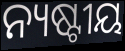
ନ୍ୟଷ୍ଟୀୟ